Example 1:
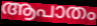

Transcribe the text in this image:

ആപാതം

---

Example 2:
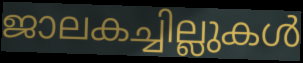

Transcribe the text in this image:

ജാലകച്ചില്ലുകൾ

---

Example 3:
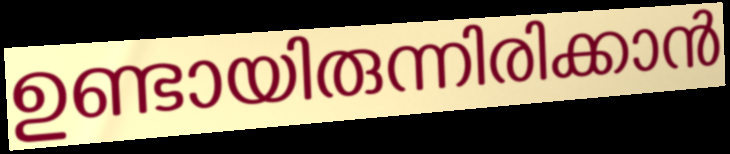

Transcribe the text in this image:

ഉണ്ടായിരുന്നിരിക്കാൻ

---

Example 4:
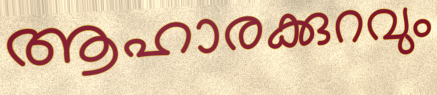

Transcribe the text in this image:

ആഹാരക്കുറവും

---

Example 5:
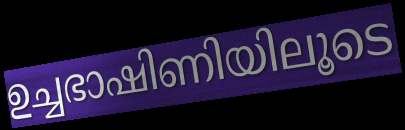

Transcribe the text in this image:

ഉച്ചഭാഷിണിയിലൂടെ